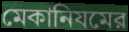
মেকানিযমের